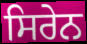
ਸਿਰੇਨ